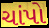
ચાંપો